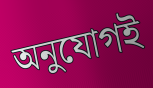
অনুযোগই